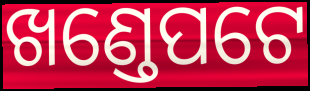
ଖଣ୍ଡେପଟେ